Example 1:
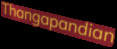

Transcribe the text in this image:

Thangapandian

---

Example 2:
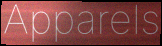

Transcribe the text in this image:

Apparels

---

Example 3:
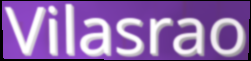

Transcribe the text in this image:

Vilasrao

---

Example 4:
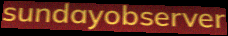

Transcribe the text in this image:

sundayobserver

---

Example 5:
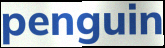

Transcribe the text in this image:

penguin